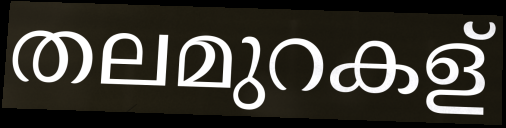
തലമുറകള്